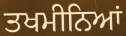
ਤਖਮੀਨਿਆਂ